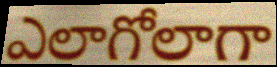
ఎలాగోలాగా